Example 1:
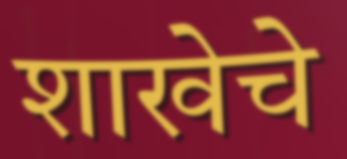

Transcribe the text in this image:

शाखेचे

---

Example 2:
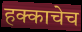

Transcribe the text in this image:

हक्काचेच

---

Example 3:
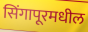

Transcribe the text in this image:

सिंगापूरमधील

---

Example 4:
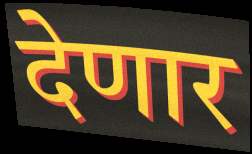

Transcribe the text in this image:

देणार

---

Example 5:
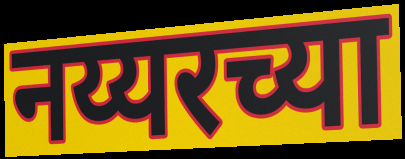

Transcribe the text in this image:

नय्यरच्या